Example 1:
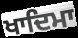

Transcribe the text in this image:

ਖਾਦਿਮਾ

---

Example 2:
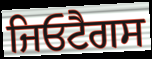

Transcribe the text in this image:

ਜਿਓਟੈਗਸ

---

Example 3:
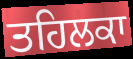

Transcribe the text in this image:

ਤਹਿਲਕਾ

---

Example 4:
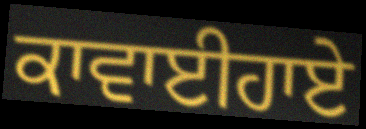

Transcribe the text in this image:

ਕਾਵਾਈਹਾਏ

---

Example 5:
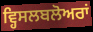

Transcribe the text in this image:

ਵ੍ਹਿਸਲਬਲੋਅਰਾਂ